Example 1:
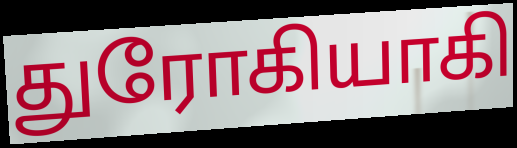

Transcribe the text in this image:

துரோகியாகி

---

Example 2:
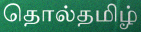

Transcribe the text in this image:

தொல்தமிழ்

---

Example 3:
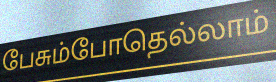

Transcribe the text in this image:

பேசும்போதெல்லாம்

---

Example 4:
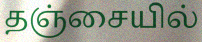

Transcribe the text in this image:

தஞ்சையில்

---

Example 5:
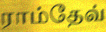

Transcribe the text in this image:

ராம்தேவ்